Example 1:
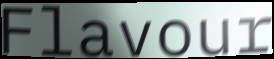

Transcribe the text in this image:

Flavour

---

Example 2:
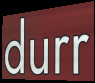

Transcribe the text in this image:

durr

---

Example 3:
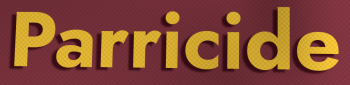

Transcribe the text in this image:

Parricide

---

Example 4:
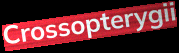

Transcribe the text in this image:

Crossopterygii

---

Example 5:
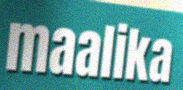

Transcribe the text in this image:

maalika